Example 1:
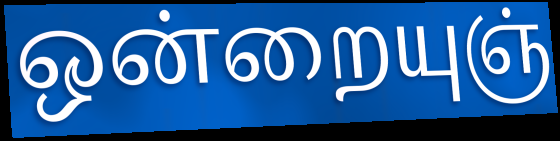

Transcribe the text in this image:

ஒன்றையுஞ்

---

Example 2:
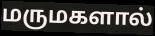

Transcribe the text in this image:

மருமகளால்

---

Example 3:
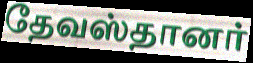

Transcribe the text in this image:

தேவஸ்தானர்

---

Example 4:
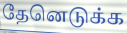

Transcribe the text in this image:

தேனெடுக்க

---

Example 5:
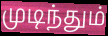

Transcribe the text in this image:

முடிந்தும்